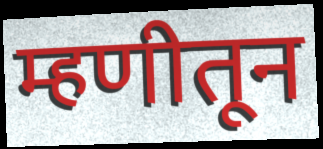
म्हणीतून